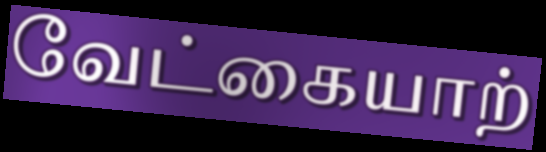
வேட்கையாற்